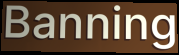
Banning